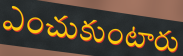
ఎంచుకుంటారు